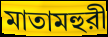
মাতামহুরী